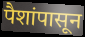
पैशांपासून